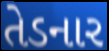
તેડનાર